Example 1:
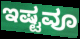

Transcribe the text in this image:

ಇಷ್ಟವೂ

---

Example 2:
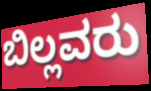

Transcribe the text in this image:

ಬಿಲ್ಲವರು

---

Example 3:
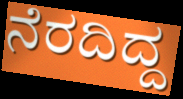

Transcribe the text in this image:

ನೆರದಿದ್ದ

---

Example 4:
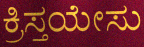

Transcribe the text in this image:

ಕ್ರಿಸ್ತಯೇಸು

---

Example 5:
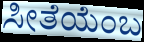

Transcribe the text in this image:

ಸೀತೆಯೆಂಬ